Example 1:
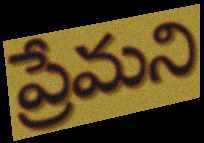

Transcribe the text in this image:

ప్రేమని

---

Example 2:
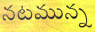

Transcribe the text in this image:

నటమున్న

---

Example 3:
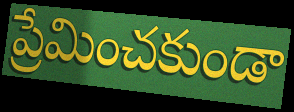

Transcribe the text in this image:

ప్రేమించకుండా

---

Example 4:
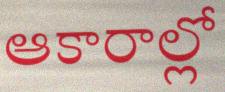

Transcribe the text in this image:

ఆకారాల్లో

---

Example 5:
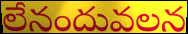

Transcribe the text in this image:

లేనందువలన